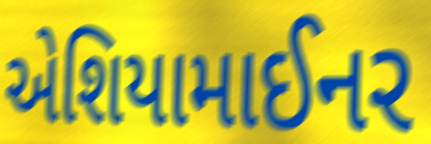
એશિયામાઈનર